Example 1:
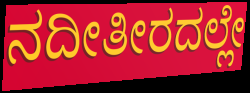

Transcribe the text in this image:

ನದೀತೀರದಲ್ಲೇ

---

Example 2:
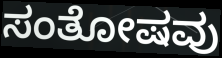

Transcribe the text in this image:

ಸಂತೋಷವು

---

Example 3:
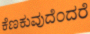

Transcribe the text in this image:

ಕೆಣಕುವುದೆಂದರೆ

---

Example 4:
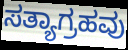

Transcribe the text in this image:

ಸತ್ಯಾಗ್ರಹವು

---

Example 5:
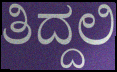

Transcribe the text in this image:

ತಿದ್ದಲಿ